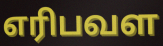
எரிபவள